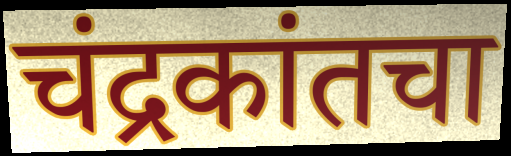
चंद्रकांतचा